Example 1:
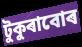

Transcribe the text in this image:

টুকুৰাবোৰ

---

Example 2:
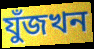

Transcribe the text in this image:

যুঁজখন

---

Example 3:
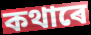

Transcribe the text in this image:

কথাৰে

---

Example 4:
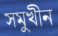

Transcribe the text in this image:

সমুখীন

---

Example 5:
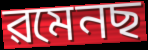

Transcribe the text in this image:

ৱমেনছ